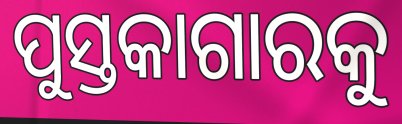
ପୁସ୍ତକାଗାରକୁ